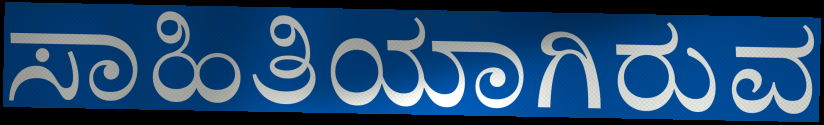
ಸಾಹಿತಿಯಾಗಿರುವ